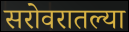
सरोवरातल्या